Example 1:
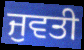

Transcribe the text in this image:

ਜੁਵਤੀ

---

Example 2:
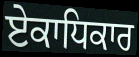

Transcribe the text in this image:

ਏਕਾਧਿਕਾਰ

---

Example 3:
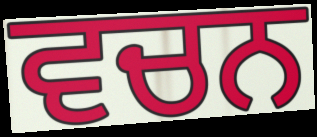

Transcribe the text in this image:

ਵਚਨ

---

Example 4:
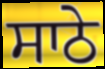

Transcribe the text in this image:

ਸਾਠੇ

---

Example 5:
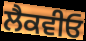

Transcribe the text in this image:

ਲੈਕਵੀਓ